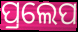
ପ୍ରଲେପ